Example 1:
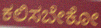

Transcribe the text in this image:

ಕಲಿಸಬೇಕೋ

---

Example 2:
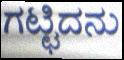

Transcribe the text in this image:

ಗಟ್ಟಿದನು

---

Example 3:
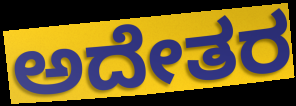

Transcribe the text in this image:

ಅದೇತರ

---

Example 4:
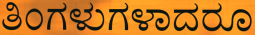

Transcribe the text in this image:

ತಿಂಗಳುಗಳಾದರೂ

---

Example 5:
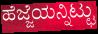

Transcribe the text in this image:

ಹೆಜ್ಜೆಯನ್ನಿಟ್ಟು